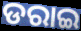
ଡରାଇ